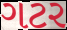
ગટર